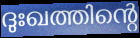
ദുഃഖത്തിന്റെ